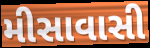
મીસાવાસી